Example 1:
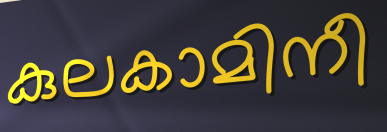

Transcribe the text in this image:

കുലകാമിനീ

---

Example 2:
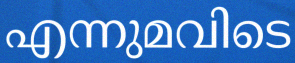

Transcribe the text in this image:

എന്നുമവിടെ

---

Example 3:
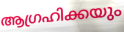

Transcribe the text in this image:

ആഗ്രഹിക്കയും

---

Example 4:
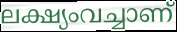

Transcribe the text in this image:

ലക്ഷ്യംവച്ചാണ്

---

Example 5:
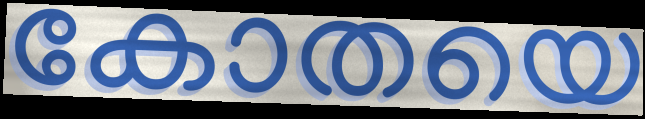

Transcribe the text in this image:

കോതയെ